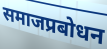
समाजप्रबोधन